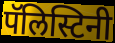
पॅलिस्टिनी